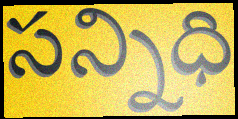
సన్నిధి